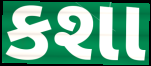
કશા